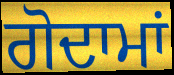
ਗੋਦਾਮਾਂ